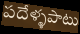
పదేళ్ళపాటు